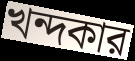
খন্দকার